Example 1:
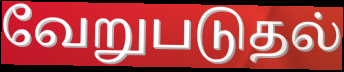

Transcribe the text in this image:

வேறுபடுதல்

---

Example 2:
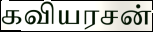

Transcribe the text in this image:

கவியரசன்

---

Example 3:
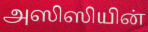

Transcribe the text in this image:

அஸிஸியின்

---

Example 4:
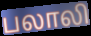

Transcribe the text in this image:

பலாலி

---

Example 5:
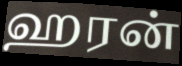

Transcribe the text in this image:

ஹரன்